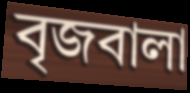
বৃজবালা